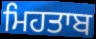
ਮਿਹਤਾਬ